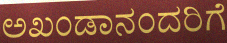
ಅಖಂಡಾನಂದರಿಗೆ